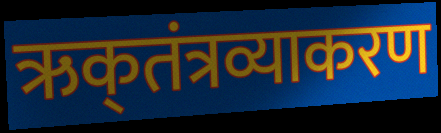
ऋक्‌तंत्रव्याकरण